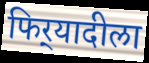
फिर्यादीला